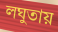
লঘুতায়